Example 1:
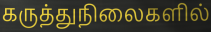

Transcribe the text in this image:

கருத்துநிலைகளில்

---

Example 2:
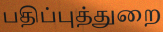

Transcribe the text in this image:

பதிப்புத்துறை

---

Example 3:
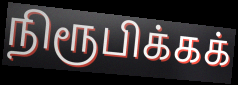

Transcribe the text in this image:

நிரூபிக்கக்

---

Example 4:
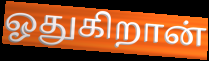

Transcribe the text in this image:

ஓதுகிறான்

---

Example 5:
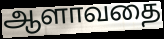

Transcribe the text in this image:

ஆளாவதை